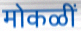
मोकळीं